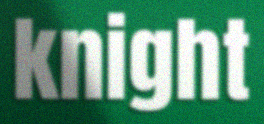
knight